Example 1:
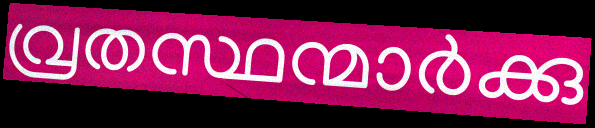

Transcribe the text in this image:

വ്രതസ്ഥന്മാർക്കു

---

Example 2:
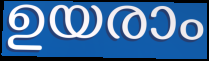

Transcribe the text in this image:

ഉയരാം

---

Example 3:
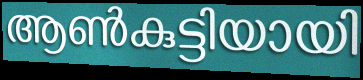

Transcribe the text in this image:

ആൺകുട്ടിയായി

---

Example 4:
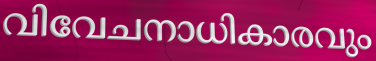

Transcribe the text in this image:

വിവേചനാധികാരവും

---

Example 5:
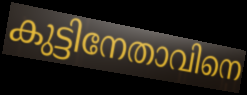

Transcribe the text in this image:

കുട്ടിനേതാവിനെ